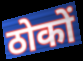
ठोकों